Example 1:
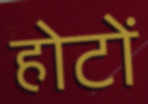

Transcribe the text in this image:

होटों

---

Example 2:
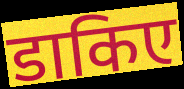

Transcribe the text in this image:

डाकिए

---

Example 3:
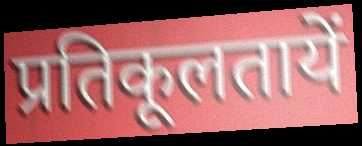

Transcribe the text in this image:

प्रतिकूलतायें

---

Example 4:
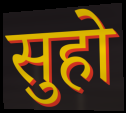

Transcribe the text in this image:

सुहो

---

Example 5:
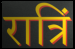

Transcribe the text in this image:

रात्रिं